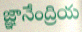
జ్ఞానేంద్రియ